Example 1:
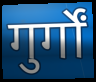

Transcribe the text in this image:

गुर्गों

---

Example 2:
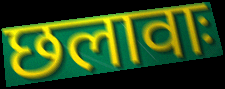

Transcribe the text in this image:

छलावाः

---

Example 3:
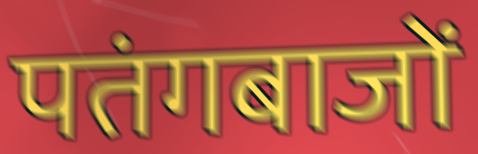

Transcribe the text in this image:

पतंगबाजों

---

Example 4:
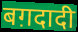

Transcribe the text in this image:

बग़दादी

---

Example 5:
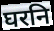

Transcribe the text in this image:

घरनि